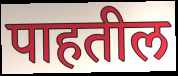
पाहतील